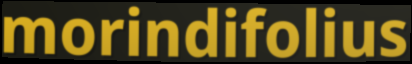
morindifolius